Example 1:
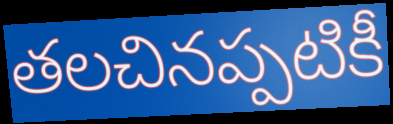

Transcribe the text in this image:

తలచినప్పటికీ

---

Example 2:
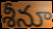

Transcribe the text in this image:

శీనూ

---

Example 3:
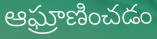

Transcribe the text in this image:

ఆఘ్రాణించడం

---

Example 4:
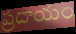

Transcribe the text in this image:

ప్రదాయం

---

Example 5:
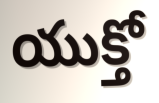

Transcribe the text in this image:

యుక్తో